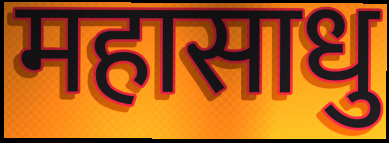
महासाधु